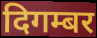
दिगम्बर